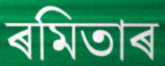
ৰমিতাৰ